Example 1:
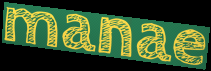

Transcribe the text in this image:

manae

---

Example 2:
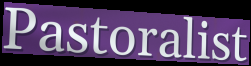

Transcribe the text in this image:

Pastoralist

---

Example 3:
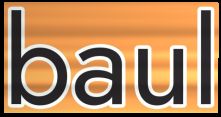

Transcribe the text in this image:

baul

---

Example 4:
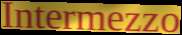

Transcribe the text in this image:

Intermezzo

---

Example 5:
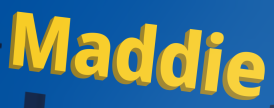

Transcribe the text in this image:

Maddie